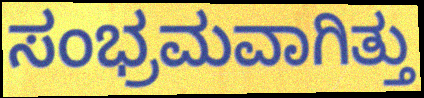
ಸಂಭ್ರಮವಾಗಿತ್ತು